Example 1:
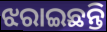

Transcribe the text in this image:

ଝରାଇଛନ୍ତି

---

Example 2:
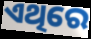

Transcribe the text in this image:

ଏଥିରେ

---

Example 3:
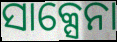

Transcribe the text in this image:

ସାକ୍ସେନା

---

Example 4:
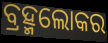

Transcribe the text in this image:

ବ୍ରହ୍ମଲୋକର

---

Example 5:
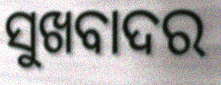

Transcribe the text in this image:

ସୁଖବାଦର